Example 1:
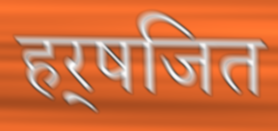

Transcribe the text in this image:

हर्षजित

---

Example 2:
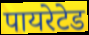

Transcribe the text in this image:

पायरेटेड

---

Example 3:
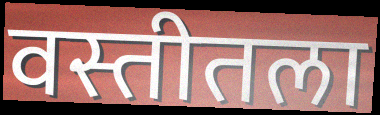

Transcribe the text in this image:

वस्तीतला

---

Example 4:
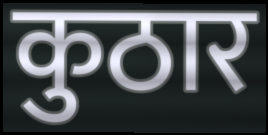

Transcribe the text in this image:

कुठार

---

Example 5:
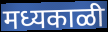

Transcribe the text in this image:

मध्यकाळी